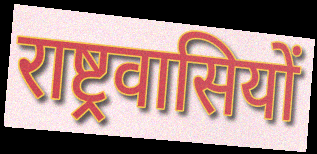
राष्ट्रवासियों